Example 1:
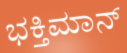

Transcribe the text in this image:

ಭಕ್ತಿಮಾನ್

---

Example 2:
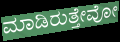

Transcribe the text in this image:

ಮಾಡಿರುತ್ತೇವೋ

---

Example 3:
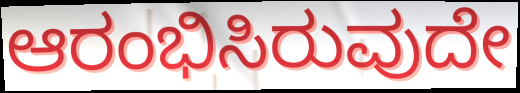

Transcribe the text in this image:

ಆರಂಭಿಸಿರುವುದೇ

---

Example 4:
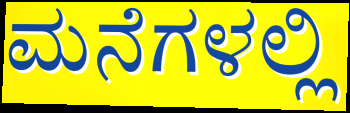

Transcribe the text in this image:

ಮನೆಗಳಲ್ಲಿ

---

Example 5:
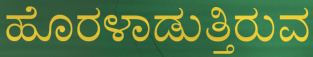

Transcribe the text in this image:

ಹೊರಳಾಡುತ್ತಿರುವ